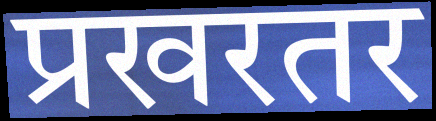
प्रखरतर